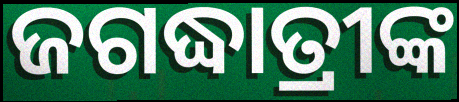
ଜଗଦ୍ଧାତ୍ରୀଙ୍କ